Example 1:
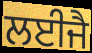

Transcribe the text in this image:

ਲਈਜੈ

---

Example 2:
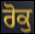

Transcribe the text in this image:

ਰੋਕੁ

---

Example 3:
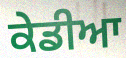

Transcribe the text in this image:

ਕੇਡੀਆ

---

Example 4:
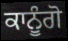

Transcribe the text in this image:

ਕਾਨੂੰਗੋ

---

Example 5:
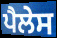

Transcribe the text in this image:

ਪੈਲੇਸ